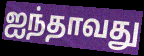
ஐந்தாவது